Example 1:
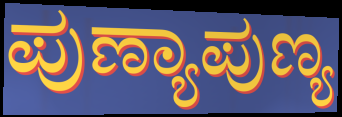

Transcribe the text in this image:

ಪುಣ್ಯಾಪುಣ್ಯ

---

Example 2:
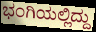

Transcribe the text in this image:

ಭಂಗಿಯಲ್ಲಿದ್ದು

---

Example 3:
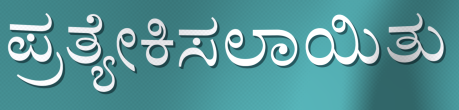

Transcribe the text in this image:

ಪ್ರತ್ಯೇಕಿಸಲಾಯಿತು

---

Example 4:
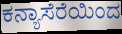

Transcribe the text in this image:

ಕನ್ಯಾಸೆರೆಯಿಂದ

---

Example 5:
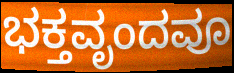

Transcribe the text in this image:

ಭಕ್ತವೃಂದವೂ